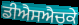
ਡੀਐਸਐਚਕੇ